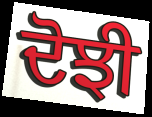
ਦੋਝੀ